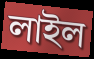
লাইল